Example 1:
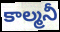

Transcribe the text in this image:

కాల్మనీ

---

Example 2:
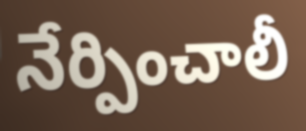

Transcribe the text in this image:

నేర్పించాలీ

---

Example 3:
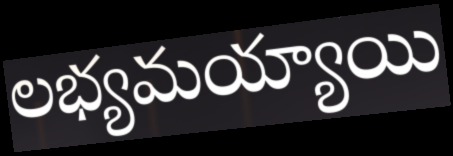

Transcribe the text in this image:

లభ్యమయ్యాయి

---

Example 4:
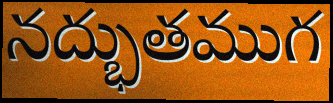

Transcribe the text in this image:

నద్భుతముగ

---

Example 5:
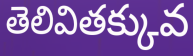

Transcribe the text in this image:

తెలివితక్కువ